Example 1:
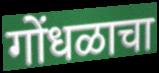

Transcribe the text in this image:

गोंधळाचा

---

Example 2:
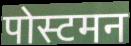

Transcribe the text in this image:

पोस्टमन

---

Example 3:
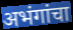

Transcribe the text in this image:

अभंगांचा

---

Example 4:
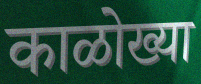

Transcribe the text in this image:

काळोख्या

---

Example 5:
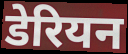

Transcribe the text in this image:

डेरियन